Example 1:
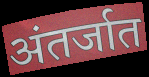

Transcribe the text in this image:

अंतर्जात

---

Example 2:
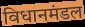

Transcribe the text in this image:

विधानमंडल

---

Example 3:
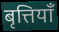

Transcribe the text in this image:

बृत्तियाँ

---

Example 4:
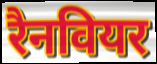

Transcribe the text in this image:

रैनवियर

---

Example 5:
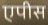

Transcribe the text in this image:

एपीस